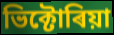
ভিক্টোৰিয়া